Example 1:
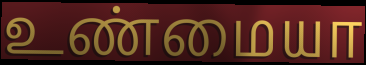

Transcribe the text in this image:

உண்மையா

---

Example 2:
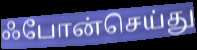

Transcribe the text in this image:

ஃபோன்செய்து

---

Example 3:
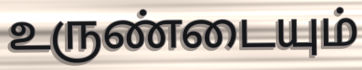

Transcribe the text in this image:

உருண்டையும்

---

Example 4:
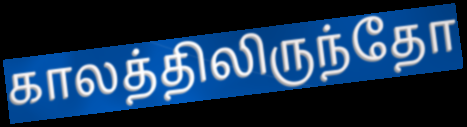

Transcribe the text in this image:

காலத்திலிருந்தோ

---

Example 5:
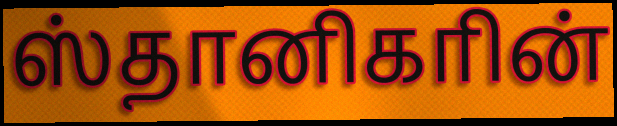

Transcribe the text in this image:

ஸ்தானிகரின்